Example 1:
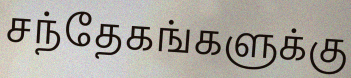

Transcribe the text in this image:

சந்தேகங்களுக்கு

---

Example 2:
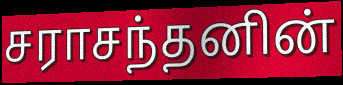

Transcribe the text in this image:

சராசந்தனின்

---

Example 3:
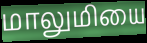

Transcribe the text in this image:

மாலுமியை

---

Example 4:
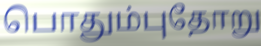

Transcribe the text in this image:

பொதும்புதோறு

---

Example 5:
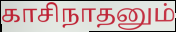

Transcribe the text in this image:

காசிநாதனும்